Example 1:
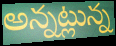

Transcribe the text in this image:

అన్నట్లున్న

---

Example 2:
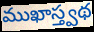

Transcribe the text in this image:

ముఖాస్త్వథ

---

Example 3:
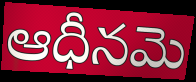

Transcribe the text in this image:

ఆధీనమె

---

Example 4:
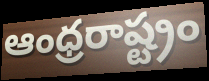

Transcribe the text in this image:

ఆంధ్రరాష్ట్రం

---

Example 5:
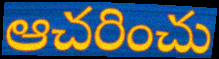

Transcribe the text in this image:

ఆచరించు